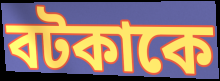
বটকাকে